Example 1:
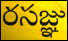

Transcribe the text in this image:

రసజ్ఞు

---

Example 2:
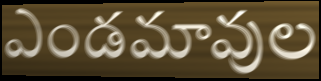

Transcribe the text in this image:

ఎండమావుల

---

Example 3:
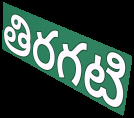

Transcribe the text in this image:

తిరగటి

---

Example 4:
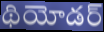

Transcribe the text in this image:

థియోడర్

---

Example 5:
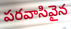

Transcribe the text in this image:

పరవాసివైన